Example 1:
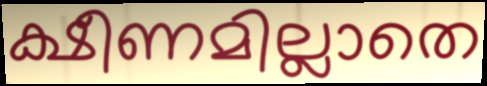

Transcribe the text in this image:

ക്ഷീണമില്ലാതെ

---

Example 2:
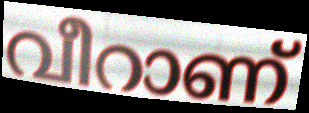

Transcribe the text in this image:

വീറാണ്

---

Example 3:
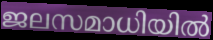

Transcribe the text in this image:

ജലസമാധിയിൽ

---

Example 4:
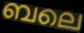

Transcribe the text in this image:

ബലെ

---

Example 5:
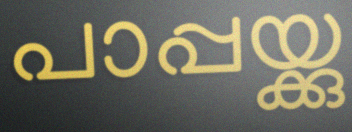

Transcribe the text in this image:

പാപ്പയ്ക്കു